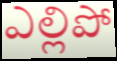
ఎల్లిపో